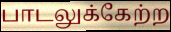
பாடலுக்கேற்ற